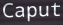
Caput